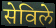
सेविले